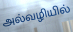
அல்வழியில்